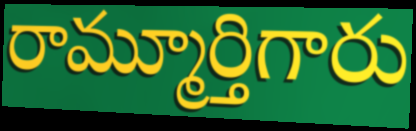
రామ్మూర్తిగారు